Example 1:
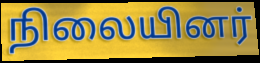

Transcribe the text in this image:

நிலையினர்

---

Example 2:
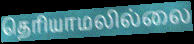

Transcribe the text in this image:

தெரியாமலில்லை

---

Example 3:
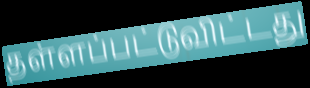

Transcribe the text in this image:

தள்ளப்பட்டுவிட்டது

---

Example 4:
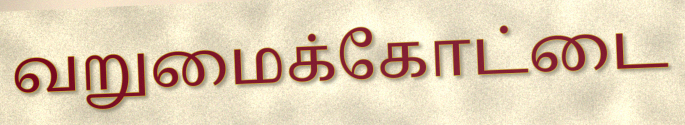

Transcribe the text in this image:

வறுமைக்கோட்டை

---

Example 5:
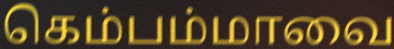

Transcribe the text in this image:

கெம்பம்மாவை